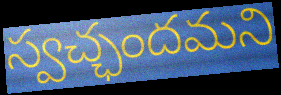
స్వచ్ఛందమని